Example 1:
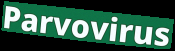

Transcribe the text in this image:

Parvovirus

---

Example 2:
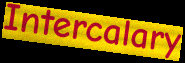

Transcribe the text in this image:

Intercalary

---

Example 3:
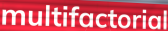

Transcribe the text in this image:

multifactorial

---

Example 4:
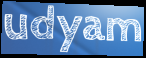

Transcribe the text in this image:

udyam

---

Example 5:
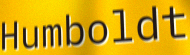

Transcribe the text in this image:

Humboldt